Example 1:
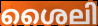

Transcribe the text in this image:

ശൈലി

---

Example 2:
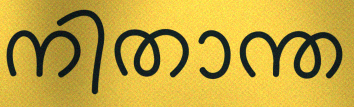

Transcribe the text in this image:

നിതാന്ത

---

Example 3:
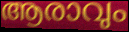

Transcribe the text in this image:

ആരാവും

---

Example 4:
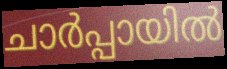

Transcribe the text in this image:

ചാർപ്പായിൽ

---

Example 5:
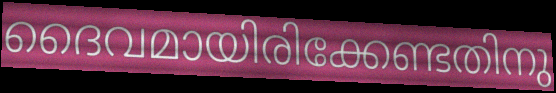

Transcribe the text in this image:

ദൈവമായിരിക്കേണ്ടതിനു